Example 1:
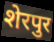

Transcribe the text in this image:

शेरपुर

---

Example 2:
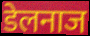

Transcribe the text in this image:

डेलनाज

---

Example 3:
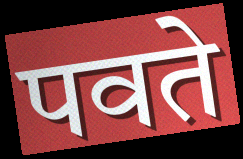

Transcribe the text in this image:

पवते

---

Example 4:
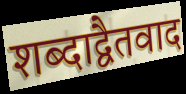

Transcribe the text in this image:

शब्दाद्वैतवाद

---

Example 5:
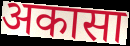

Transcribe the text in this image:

अकासा